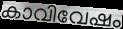
കാവിവേഷം